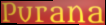
Purana